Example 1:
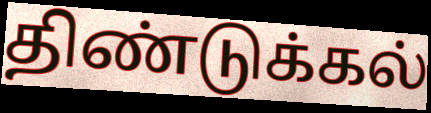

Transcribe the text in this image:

திண்டுக்கல்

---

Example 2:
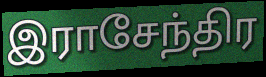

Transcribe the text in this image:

இராசேந்திர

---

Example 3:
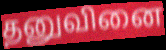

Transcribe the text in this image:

தனுவினை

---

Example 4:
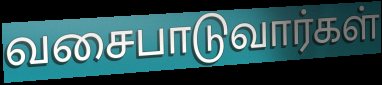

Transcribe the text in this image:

வசைபாடுவார்கள்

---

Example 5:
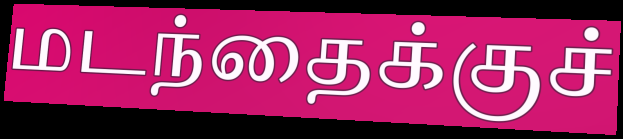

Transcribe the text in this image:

மடந்தைக்குச்